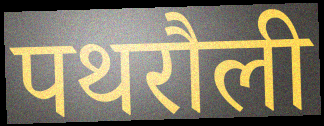
पथरौली